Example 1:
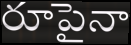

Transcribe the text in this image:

రూపైనా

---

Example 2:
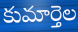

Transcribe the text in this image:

కుమార్తెల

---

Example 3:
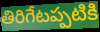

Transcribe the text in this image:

తిరిగేటప్పటికి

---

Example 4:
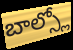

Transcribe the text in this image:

బాల్స్లో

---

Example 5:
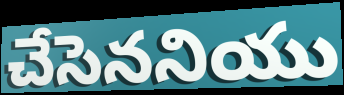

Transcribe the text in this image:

చేసెననియు